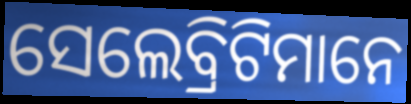
ସେଲେବ୍ରିଟିମାନେ